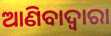
ଆଣିବାଦ୍ୱାରା